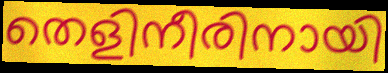
തെളിനീരിനായി